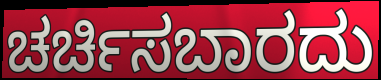
ಚರ್ಚಿಸಬಾರದು